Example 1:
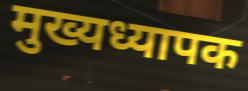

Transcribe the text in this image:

मुख्यध्यापक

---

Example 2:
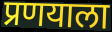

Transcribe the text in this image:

प्रणयाला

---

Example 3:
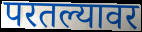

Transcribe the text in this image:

परतल्यावर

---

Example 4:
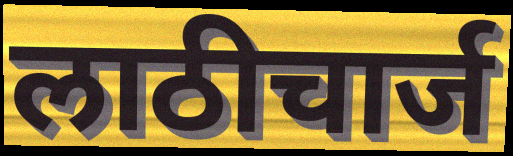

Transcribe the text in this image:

लाठीचार्ज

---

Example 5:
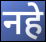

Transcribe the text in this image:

नहे